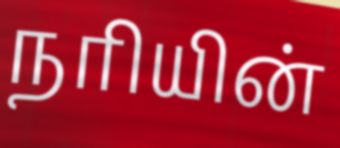
நரியின்